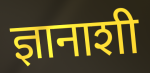
ज्ञानाशी